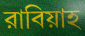
রাবিয়াহ